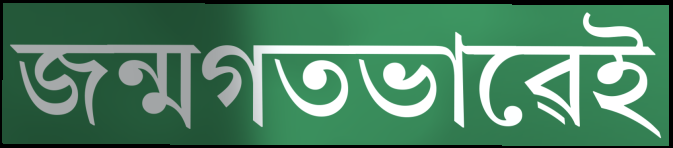
জন্মগতভাৱেই